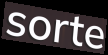
sorte